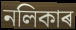
নলিকাৰ